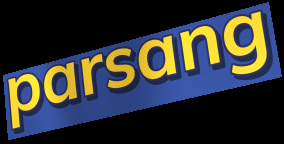
parsang